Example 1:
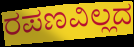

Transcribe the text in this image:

ರಪಣವಿಲ್ಲದ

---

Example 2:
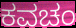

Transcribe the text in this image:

ಕವಚಂ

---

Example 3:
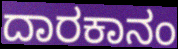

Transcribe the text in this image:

ದಾರಕಾನಂ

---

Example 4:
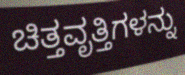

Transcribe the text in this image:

ಚಿತ್ತವೃತ್ತಿಗಳನ್ನು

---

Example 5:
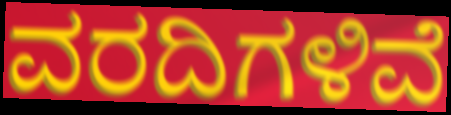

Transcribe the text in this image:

ವರದಿಗಳಿವೆ